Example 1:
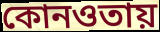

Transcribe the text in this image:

কোনওতায়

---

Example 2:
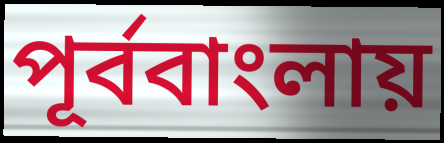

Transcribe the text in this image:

পূর্ববাংলায়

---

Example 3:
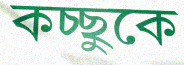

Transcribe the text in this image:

কচ্ছুকে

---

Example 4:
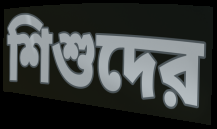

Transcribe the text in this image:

শিশুদের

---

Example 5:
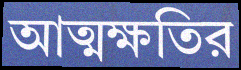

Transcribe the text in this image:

আত্মক্ষতির